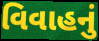
વિવાહનું